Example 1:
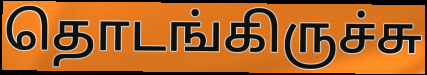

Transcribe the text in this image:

தொடங்கிருச்சு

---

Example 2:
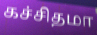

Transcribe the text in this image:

கச்சிதமா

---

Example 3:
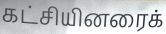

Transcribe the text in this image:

கட்சியினரைக்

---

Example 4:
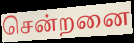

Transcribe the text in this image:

சென்றனை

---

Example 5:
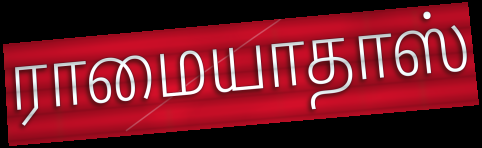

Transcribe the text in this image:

ராமையாதாஸ்